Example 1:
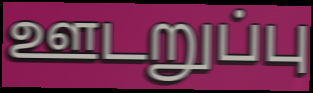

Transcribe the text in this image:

ஊடறுப்பு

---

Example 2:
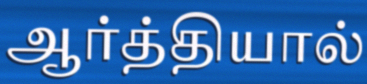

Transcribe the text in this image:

ஆர்த்தியால்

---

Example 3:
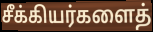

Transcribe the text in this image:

சீக்கியர்களைத்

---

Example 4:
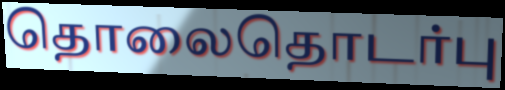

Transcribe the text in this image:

தொலைதொடர்பு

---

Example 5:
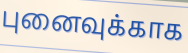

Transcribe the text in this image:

புனைவுக்காக